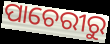
ପାଚେରୀରୁ